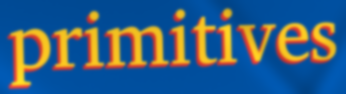
primitives